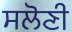
ਸਲੋਣੀ